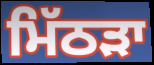
ਮਿੱਠੜਾ